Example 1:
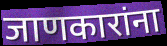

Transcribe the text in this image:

जाणकारांना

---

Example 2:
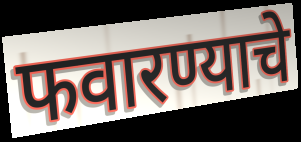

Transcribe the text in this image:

फवारण्याचे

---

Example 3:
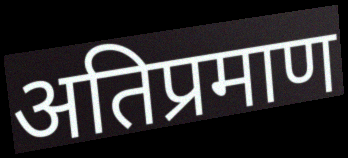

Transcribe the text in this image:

अतिप्रमाण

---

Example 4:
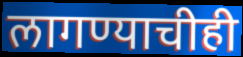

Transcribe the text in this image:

लागण्याचीही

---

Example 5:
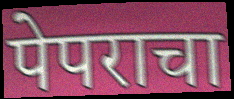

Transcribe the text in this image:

पेपराचा